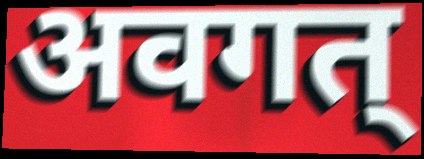
अवगत्